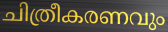
ചിത്രീകരണവും